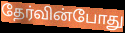
தேர்வின்போது